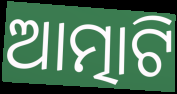
ଆତ୍ମାଟି